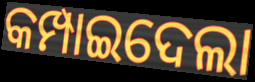
କମ୍ପାଇଦେଲା